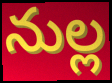
నుల్ల